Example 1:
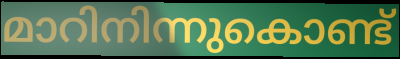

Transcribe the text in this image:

മാറിനിന്നുകൊണ്ട്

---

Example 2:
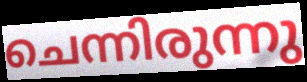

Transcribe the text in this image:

ചെന്നിരുന്നു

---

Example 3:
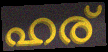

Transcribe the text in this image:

ഹര്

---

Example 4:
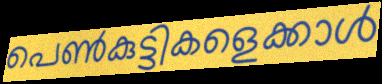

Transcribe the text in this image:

പെൺകുട്ടികളെക്കാൾ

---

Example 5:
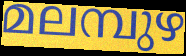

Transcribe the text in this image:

മലമ്പുഴ